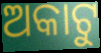
ଅକାଟୁ